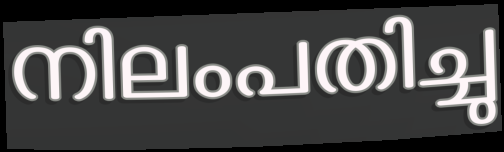
നിലംപതിച്ചു